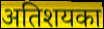
अतिशयका